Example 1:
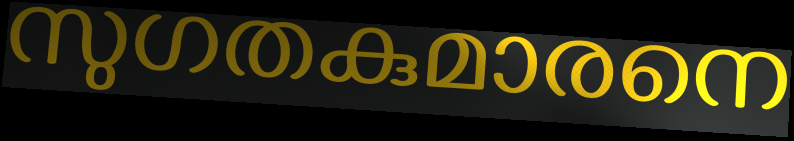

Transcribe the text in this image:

സുഗതകുമാരനെ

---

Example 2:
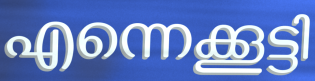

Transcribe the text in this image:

എന്നെക്കൂട്ടി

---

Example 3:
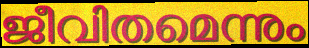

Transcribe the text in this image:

ജീവിതമെന്നും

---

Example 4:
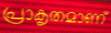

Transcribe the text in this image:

പ്രാകൃതമാണ്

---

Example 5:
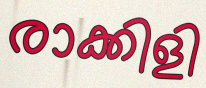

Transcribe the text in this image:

രാക്കിളി